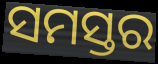
ସମସ୍ତର